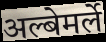
अल्बेमर्ले